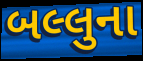
બલ્લુના